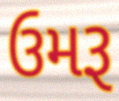
ઉમરૂ